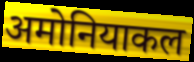
अमोनियाकल